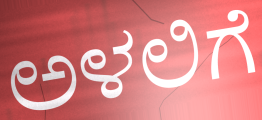
ಅಳಲಿಗೆ